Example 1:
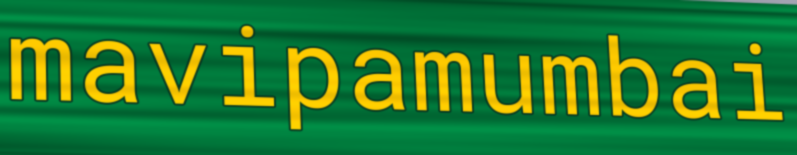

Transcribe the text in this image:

mavipamumbai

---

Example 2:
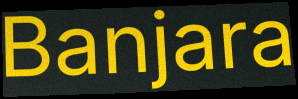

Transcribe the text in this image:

Banjara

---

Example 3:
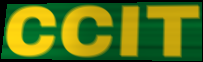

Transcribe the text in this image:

CCIT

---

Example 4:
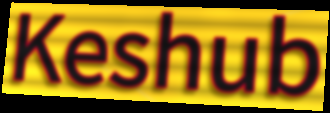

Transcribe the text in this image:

Keshub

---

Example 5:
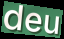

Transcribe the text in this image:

deu